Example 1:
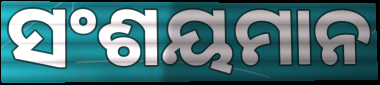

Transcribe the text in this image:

ସଂଶୟମାନ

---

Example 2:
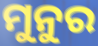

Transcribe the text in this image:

ମୁନୁର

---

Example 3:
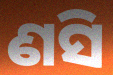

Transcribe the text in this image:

ଣସି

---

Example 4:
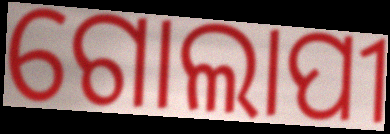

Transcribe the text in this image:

ଗୋଲାପୀ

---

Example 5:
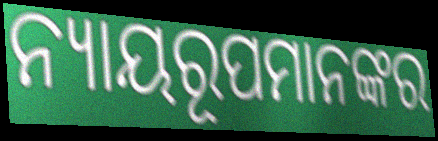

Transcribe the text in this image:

ନ୍ୟାୟରୂପମାନଙ୍କର